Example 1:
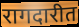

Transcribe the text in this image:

रागदारीत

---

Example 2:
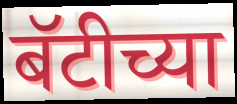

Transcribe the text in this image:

बॅटीच्या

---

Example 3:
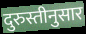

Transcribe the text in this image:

दुरुस्तीनुसार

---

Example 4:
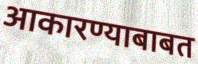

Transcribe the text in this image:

आकारण्याबाबत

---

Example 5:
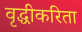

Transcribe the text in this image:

वृद्धीकरिता